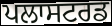
ਪਲਾਸਟਰਡ